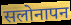
सलोनापन